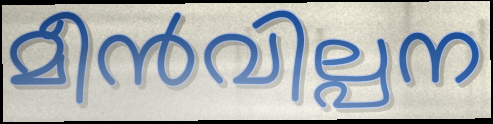
മീൻവില്പന